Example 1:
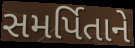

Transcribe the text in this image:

સમર્પિતાને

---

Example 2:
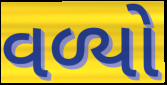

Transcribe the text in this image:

વળ્યો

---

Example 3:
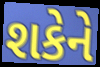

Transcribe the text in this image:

શકેને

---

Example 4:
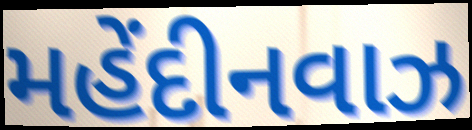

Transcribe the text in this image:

મહેંદીનવાઝ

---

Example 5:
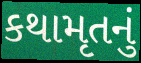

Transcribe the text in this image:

કથામૃતનું